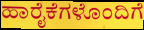
ಹಾರೈಕೆಗಳೊಂದಿಗೆ